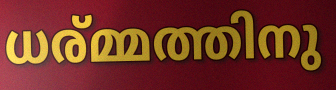
ധര്മ്മത്തിനു